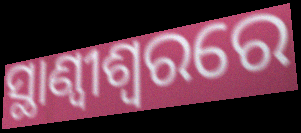
ସ୍ଥାଣ୍ୱୀଶ୍ୱରରେ